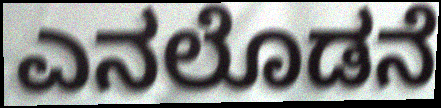
ಎನಲೊಡನೆ